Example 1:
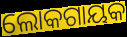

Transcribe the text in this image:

ଲୋକଗାୟକ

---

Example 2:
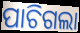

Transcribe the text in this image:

ପାଚିଗଲା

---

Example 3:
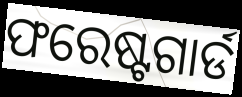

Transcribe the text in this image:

ଫରେଷ୍ଟଗାର୍ଡ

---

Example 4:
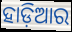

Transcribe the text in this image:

ହାଡ଼ିଆର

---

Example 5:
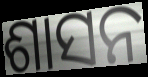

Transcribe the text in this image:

ଶାସନ